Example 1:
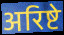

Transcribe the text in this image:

अरिष्टे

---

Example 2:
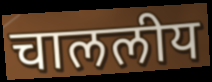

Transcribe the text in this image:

चाललीय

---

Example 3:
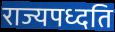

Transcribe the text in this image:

राज्यपध्दति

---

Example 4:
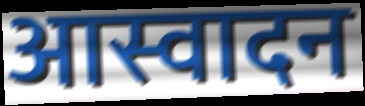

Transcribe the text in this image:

आस्वादन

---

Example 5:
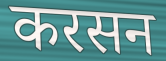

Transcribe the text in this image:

करसन